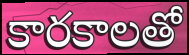
కారకాలతో